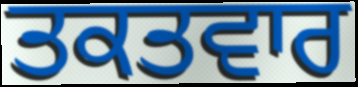
ਤਕਤਵਾਰ